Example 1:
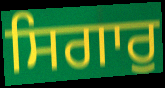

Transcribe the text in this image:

ਸਿਗਾਰੁ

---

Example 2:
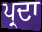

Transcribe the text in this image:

ਪ੍ਰਦਾ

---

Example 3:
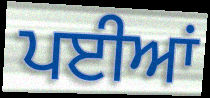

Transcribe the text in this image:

ਪਈਆਂ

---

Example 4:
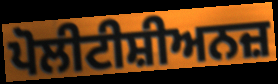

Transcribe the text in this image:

ਪੋਲੀਟੀਸ਼ੀਅਨਜ਼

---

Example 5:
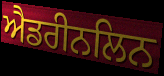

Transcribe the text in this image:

ਐਡਰੀਨਲਿਨ